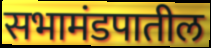
सभामंडपातील